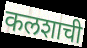
कलशाची